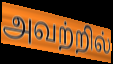
அவற்றில்